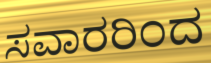
ಸವಾರರಿಂದ